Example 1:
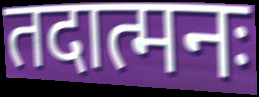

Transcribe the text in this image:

तदात्मनः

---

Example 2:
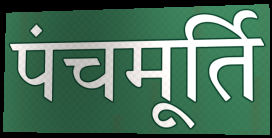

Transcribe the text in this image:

पंचमूर्ति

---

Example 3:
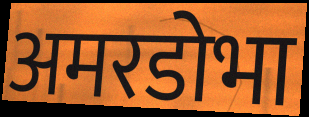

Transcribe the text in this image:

अमरडोभा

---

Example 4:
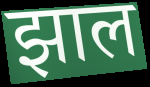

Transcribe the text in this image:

झाल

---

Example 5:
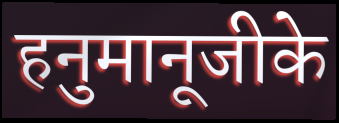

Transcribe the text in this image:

हनुमानूजीके